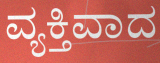
ವ್ಯಕ್ತಿವಾದ